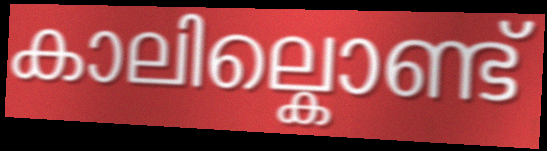
കാലില്കൊണ്ട്